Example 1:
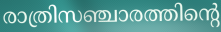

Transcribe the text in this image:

രാത്രിസഞ്ചാരത്തിന്റെ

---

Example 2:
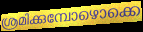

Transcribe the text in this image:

ശ്രമിക്കുമ്പോഴൊക്കെ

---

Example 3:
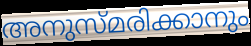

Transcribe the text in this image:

അനുസ്മരിക്കാനും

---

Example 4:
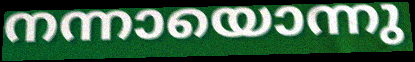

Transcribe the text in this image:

നന്നായൊന്നു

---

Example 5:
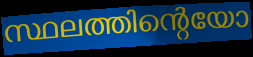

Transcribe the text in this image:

സ്ഥലത്തിന്റെയോ